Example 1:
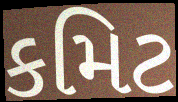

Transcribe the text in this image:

કમિટ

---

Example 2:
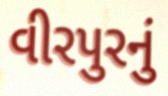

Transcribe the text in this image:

વીરપુરનું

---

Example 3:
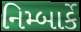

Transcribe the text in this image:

નિમ્બાર્કે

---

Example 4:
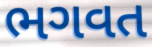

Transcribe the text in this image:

ભગવત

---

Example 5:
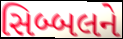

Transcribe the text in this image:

સિબ્બલને